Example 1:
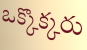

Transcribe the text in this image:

ఒక్కొక్కరు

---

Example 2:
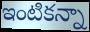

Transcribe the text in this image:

ఇంటికన్నా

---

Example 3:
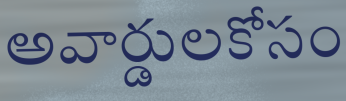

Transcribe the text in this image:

అవార్డులకోసం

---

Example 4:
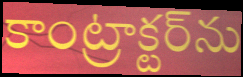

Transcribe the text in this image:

కాంట్రాక్టర్‌ను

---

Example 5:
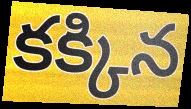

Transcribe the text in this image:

కక్కిన